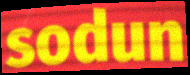
sodun